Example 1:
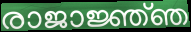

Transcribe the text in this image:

രാജാജ്ഞ്ഞ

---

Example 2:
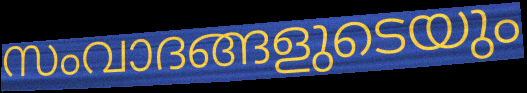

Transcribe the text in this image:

സംവാദങ്ങളുടെയും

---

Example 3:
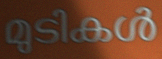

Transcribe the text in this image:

മുടികൾ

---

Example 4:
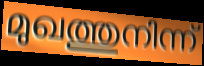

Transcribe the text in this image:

മുഖത്തുനിന്ന്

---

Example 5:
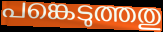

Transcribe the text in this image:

പങ്കെടുത്തതു